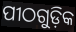
ପୀଠଗୁଡ଼ିକ